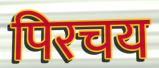
पिरचय